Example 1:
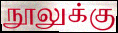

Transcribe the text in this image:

நூலுக்கு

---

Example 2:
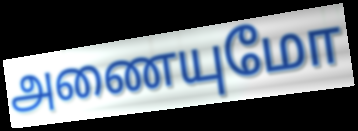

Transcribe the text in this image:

அணையுமோ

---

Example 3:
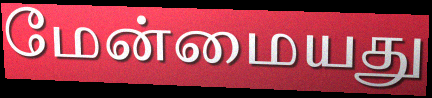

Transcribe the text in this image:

மேன்மையது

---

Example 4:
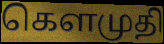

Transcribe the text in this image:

கௌமுதி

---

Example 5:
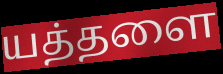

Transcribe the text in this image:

யத்தளை